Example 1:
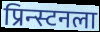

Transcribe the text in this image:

प्रिन्स्टनला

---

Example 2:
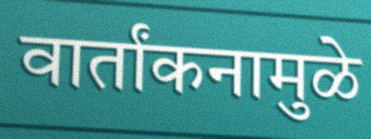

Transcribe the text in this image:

वार्तांकनामुळे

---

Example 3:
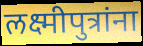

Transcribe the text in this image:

लक्ष्मीपुत्रांना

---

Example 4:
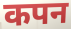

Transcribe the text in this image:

कपन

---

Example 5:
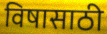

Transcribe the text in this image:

विषासाठी